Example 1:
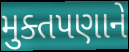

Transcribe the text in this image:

મુક્તપણાને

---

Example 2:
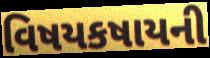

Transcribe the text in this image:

વિષયકષાયની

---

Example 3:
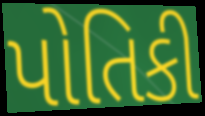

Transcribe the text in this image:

પોતિકી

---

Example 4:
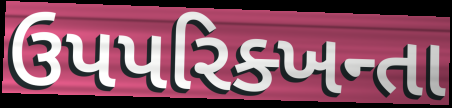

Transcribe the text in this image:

ઉપપરિક્ખન્તા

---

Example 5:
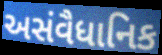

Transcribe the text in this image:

અસંવૈધાનિક